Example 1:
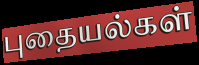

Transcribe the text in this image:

புதையல்கள்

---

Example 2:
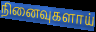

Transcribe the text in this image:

நினைவுகளாய்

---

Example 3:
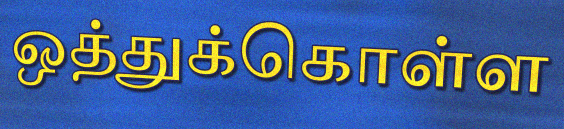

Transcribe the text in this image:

ஒத்துக்கொள்ள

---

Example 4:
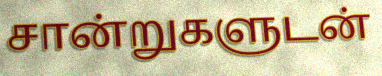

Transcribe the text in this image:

சான்றுகளுடன்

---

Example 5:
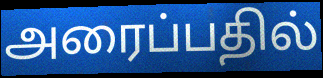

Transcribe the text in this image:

அரைப்பதில்